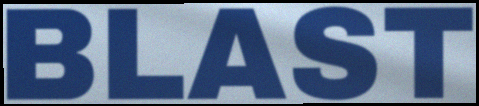
BLAST